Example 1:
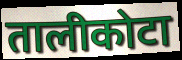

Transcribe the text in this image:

तालीकोटा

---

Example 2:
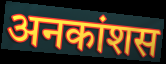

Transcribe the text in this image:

अनकांशस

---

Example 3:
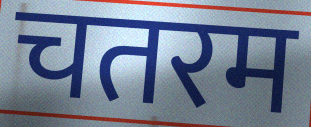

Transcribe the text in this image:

चतरम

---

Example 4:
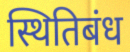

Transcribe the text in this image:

स्थितिबंध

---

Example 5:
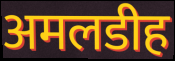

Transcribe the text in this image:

अमलडीह